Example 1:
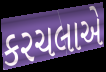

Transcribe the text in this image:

કરચલાએ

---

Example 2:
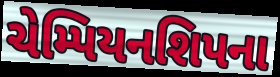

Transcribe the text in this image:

ચેમ્પિયનશિપના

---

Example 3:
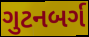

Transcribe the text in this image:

ગુટનબર્ગ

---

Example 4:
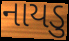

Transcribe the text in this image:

નાયડુ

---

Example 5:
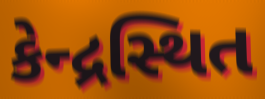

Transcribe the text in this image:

કેન્દ્રસ્થિત